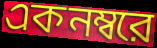
একনম্বরে